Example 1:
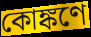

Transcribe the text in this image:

কোঙ্কণে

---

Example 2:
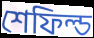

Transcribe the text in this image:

শেফিল্ড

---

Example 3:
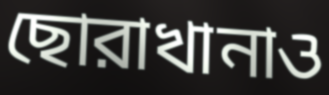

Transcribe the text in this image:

ছোরাখানাও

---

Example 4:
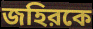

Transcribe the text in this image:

জহিরকে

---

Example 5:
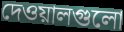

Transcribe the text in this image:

দেওয়ালগুলো